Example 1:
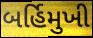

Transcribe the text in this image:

બર્હિમુખી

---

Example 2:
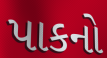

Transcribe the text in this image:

પાકનો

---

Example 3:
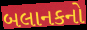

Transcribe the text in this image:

બલાનકનો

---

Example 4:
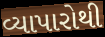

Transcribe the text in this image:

વ્યાપારોથી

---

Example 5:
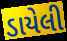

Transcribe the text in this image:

ડાયેલી